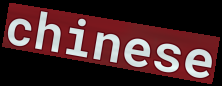
chinese